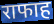
राफाह